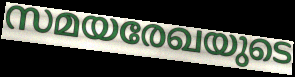
സമയരേഖയുടെ